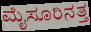
ಮೈಸೂರಿನತ್ತ